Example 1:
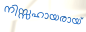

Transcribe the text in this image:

നിസ്സഹായരായ്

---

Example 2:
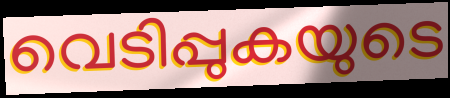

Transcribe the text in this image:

വെടിപ്പുകയുടെ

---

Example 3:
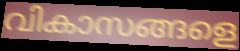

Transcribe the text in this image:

വികാസങ്ങളെ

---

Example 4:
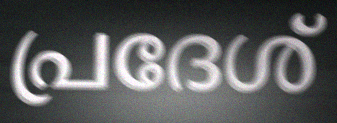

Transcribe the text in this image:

പ്രദേശ്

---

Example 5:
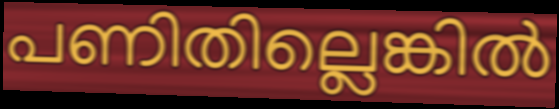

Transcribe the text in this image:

പണിതില്ലെങ്കിൽ